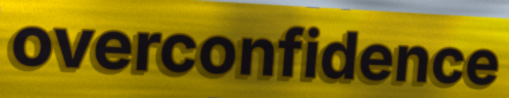
overconfidence